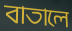
বাতালে